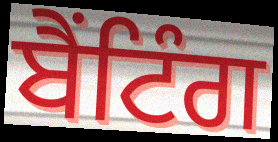
ਬੈਂਟਿੰਗ